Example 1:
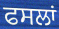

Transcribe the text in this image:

ਫਸਲਾਂ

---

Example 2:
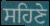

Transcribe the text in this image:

ਸਹਿਣੇ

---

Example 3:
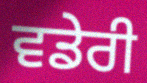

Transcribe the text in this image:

ਵਡੇਰੀ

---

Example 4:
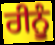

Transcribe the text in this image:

ਰੀਨੂੰ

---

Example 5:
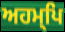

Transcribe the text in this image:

ਅਹਮ੍ਪਿ